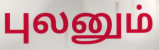
புலனும்